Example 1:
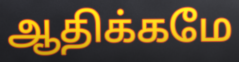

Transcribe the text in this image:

ஆதிக்கமே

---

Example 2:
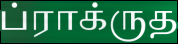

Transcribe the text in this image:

ப்ராக்ருத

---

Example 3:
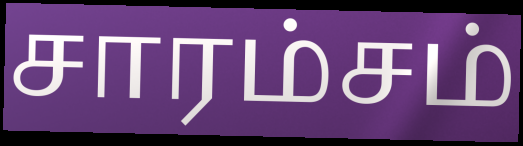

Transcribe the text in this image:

சாரம்சம்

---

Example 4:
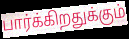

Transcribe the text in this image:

பார்க்கிறதுக்கும்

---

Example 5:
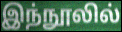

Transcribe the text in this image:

இந்நூலில்